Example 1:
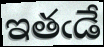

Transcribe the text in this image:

ఇతఁడే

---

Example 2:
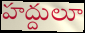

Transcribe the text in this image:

హద్దులూ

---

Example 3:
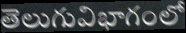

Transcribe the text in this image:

తెలుగువిభాగంలో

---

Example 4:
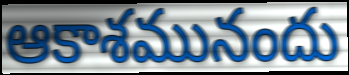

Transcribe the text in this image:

ఆకాశమునందు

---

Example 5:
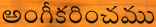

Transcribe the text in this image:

అంగీకరించము